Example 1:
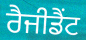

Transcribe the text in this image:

ਰੈਜੀਡੈਂਟ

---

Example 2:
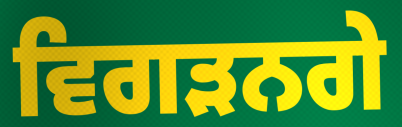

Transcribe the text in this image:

ਵਿਗੜਨਗੇ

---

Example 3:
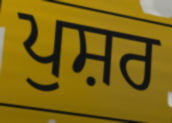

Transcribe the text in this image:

ਪੁਸ਼ਰ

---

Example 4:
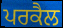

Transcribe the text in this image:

ਪਰਕੈਲ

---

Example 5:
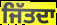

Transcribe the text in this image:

ਜਿੱਤਦਾ